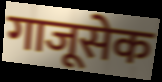
गाजूसेक